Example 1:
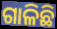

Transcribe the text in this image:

ଗାଳିଛି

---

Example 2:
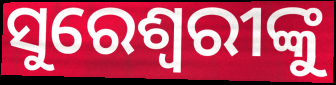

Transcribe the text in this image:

ସୁରେଶ୍ୱରୀଙ୍କୁ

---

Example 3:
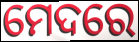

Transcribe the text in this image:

ମେଦରେ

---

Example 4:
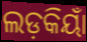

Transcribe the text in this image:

ଲଡ଼କିୟାଁ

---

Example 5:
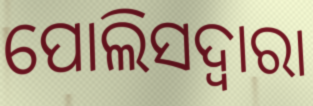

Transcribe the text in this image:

ପୋଲିସଦ୍ୱାରା